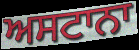
ਅਸਟਾਨਾ